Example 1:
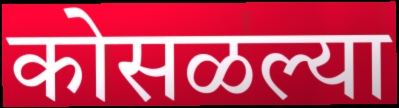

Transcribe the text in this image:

कोसळल्या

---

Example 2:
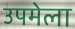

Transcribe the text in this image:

उपमेला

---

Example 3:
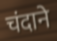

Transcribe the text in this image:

चंदाने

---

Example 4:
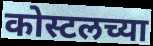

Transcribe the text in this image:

कोस्टलच्या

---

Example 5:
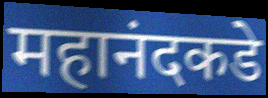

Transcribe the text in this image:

महानंदकडे